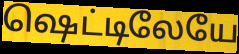
ஷெட்டிலேயே